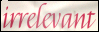
irrelevant